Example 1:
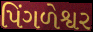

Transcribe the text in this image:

પિંગળેશ્વર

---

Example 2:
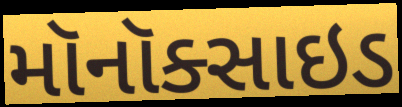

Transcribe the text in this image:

મૉનૉક્સાઇડ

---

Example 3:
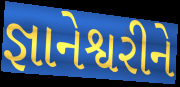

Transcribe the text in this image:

જ્ઞાનેશ્વરીને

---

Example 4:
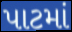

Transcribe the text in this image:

પાટમાં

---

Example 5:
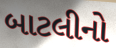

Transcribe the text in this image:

બાટલીનો